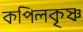
কপিলকৃষ্ণ